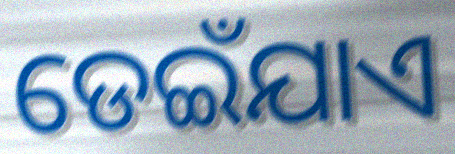
ଡେଇଁଯାଏ